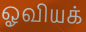
ஓவியக்